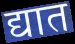
द्यात